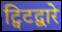
ट्विटद्वारे